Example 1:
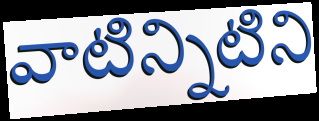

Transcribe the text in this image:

వాటిన్నిటిని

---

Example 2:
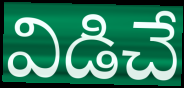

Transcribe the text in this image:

విడిచే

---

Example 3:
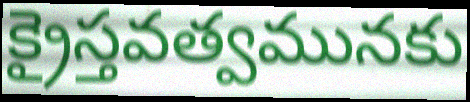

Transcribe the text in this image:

క్రైస్తవత్వమునకు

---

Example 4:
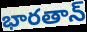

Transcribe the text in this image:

భారతాన్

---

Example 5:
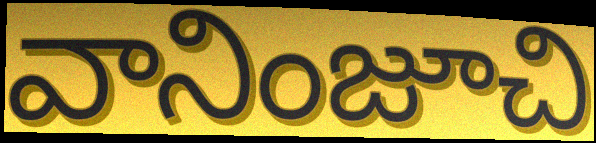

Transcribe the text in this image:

వానింజూచి